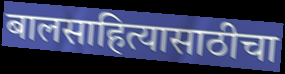
बालसाहित्यासाठीचा